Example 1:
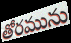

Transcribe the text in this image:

తోరమును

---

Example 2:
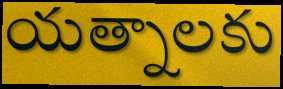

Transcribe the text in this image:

యత్నాలకు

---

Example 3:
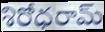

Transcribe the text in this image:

శిరోధరామ్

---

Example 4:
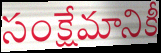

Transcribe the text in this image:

సంక్షేమానికీ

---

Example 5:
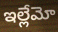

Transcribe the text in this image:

ఇల్లేమో